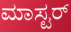
ಮಾಸ್ಟರ್